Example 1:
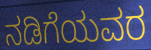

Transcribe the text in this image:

ನಡಿಗೆಯವರ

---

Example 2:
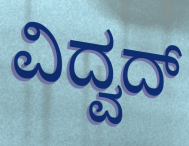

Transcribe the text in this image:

ವಿದ್ವದ್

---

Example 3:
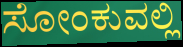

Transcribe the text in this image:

ಸೋಂಕುವಲ್ಲಿ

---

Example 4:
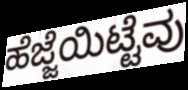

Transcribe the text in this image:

ಹೆಜ್ಜೆಯಿಟ್ಟೆವು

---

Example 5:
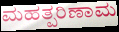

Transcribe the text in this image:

ಮಹತ್ಪರಿಣಾಮ